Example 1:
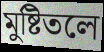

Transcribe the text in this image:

মুষ্টিতলে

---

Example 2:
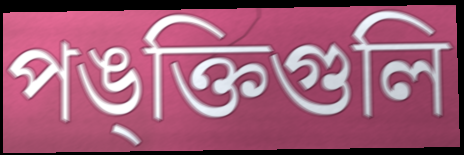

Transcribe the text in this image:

পঙ্‌ক্তিগুলি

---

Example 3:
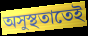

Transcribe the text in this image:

অসুস্থতাতেই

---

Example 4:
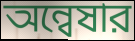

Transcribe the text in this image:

অন্বেষার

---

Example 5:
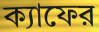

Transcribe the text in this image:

ক্যাফের